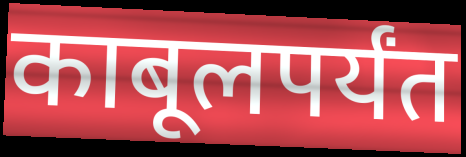
काबूलपर्यंत